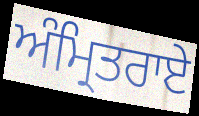
ਅੰਮ੍ਰਿਤਰਾਏ